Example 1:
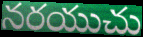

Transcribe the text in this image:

నరయుచు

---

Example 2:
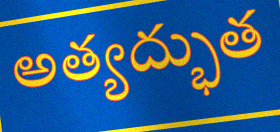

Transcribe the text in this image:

అత్యద్భుత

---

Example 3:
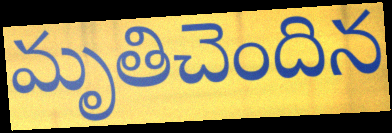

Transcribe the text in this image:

మృతిచెందిన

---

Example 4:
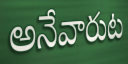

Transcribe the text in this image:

అనేవారుట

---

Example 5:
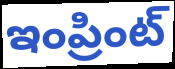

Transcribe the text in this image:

ఇంప్రింట్